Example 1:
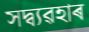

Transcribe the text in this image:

সদ্ব্যৱহাৰ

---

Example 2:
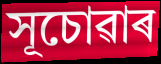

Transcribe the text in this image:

সূচোৱাৰ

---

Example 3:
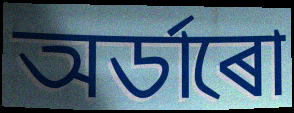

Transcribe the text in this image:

অৰ্ডাৰো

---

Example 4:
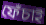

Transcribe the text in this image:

ফেঁচাই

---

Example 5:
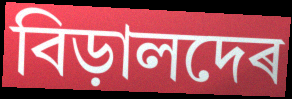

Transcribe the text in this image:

বিড়ালদেৰ